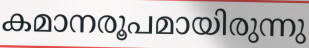
കമാനരൂപമായിരുന്നു